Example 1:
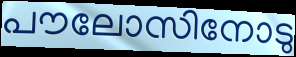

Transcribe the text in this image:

പൗലോസിനോടു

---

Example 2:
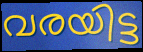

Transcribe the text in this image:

വരയിട്ട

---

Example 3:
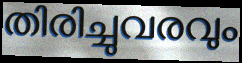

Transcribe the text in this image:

തിരിച്ചുവരവും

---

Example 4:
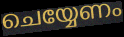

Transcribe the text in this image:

ചെയ്യേണം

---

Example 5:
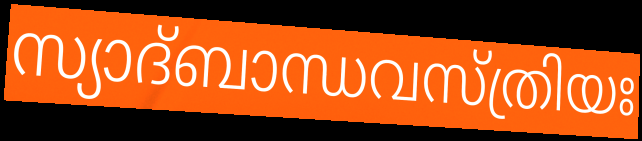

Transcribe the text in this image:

സ്യാദ്ബാന്ധവസ്ത്രിയഃ